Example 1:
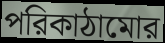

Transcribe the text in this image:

পরিকাঠামোর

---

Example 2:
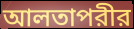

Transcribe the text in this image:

আলতাপরীর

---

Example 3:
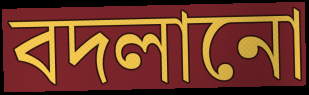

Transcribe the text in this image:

বদলানো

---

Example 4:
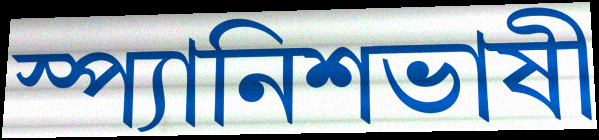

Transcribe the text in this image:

স্প্যানিশভাষী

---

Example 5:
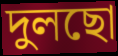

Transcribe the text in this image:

দুলছো